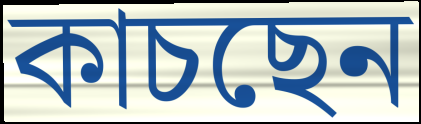
কাচছেন